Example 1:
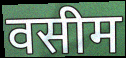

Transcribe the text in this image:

वसीम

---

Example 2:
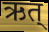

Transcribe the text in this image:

ऋत्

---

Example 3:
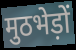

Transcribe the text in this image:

मुठभेड़ों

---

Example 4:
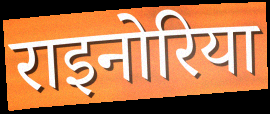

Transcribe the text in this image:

राइनोरिया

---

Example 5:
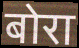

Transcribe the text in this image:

बोरा